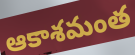
ఆకాశమంత